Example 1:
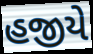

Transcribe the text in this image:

હજીયે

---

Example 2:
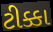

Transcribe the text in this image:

ટીક્કા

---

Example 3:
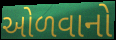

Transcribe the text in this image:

ઓળવાનો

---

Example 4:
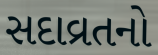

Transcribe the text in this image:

સદાવ્રતનો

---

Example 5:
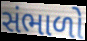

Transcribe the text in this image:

સંભાળો